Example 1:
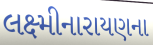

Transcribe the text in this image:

લક્ષ્મીનારાયણના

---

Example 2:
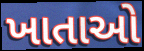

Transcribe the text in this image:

ખાતાઓ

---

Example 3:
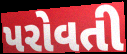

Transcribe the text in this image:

પરોવતી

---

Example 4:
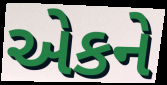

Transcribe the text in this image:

એકને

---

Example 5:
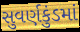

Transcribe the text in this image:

સુવર્ણકુંડમાં